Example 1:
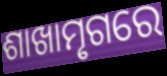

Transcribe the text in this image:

ଶାଖାମୃଗରେ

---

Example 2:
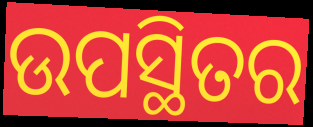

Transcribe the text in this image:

ଉପସ୍ଥିତର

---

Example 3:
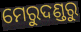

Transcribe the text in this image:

ମେରୁଦଣ୍ଡରୁ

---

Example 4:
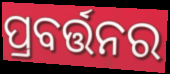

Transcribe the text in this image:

ପ୍ରବର୍ତ୍ତନର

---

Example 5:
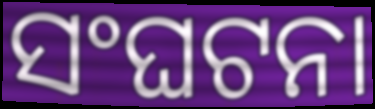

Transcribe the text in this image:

ସଂଘଟନା